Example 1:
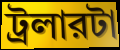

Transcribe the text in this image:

ট্রলারটা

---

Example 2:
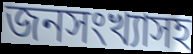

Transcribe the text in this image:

জনসংখ্যাসহ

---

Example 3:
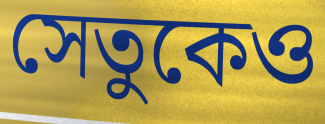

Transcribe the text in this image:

সেতুকেও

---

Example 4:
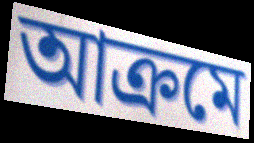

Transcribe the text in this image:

আক্রমে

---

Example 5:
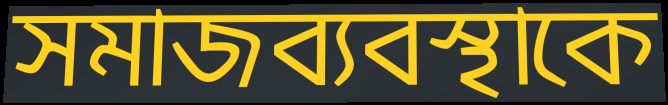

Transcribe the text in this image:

সমাজব্যবস্থাকে